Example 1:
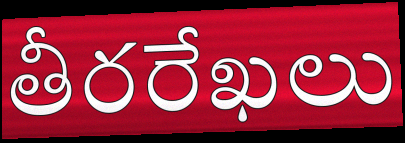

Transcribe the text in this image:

తీరరేఖలు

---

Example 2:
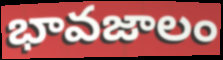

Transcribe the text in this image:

భావజాలం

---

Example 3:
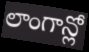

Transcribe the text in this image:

లాంగాన్లో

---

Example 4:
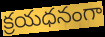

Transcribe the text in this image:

క్రయధనంగా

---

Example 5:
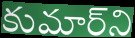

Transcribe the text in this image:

కుమార్‌ని